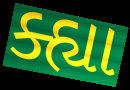
ક્હ્યા